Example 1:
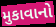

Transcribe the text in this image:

મુકાવાનો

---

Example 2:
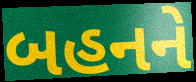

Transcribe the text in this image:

બહનને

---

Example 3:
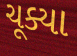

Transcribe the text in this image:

ચૂક્યા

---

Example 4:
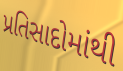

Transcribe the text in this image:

પ્રતિસાદોમાંથી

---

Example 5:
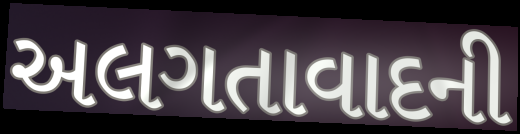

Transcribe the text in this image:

અલગતાવાદની